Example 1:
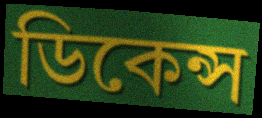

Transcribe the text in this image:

ডিকেন্স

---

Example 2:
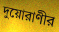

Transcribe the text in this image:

দুয়োরাণীর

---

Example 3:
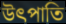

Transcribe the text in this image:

উৎপাতি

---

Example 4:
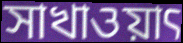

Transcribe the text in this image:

সাখাওয়াৎ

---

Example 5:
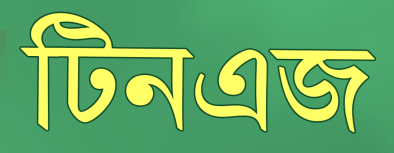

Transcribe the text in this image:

টিনএজ